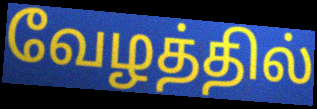
வேழத்தில்